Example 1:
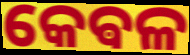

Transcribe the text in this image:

କେଵଳ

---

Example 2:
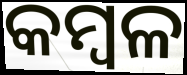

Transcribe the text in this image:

କମ୍ବଳ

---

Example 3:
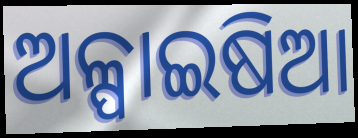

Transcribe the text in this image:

ଅଳ୍ପାଇଷିଆ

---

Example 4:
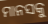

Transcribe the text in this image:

ମାନସକୁ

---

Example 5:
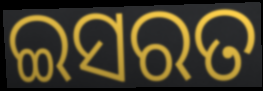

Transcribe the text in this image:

ଇସରତ